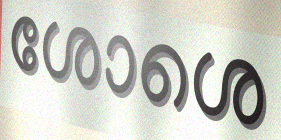
ശോശെ